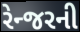
રેન્જરની